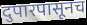
दुपारपासूनच